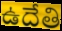
ఉదేతి